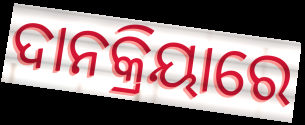
ଦାନକ୍ରିୟାରେ